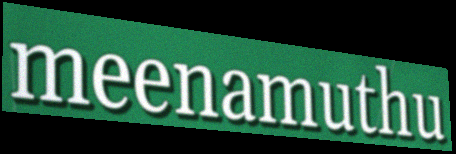
meenamuthu